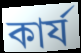
কাৰ্য